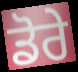
ਡੋਰੇ